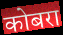
कोबरा